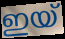
ഇയ്